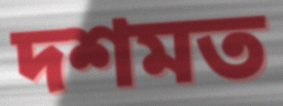
দশমত